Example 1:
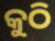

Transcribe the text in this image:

କୁଠି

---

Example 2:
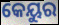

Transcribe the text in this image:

କେୟୁର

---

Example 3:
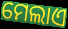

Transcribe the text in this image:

ମେଲାଏ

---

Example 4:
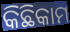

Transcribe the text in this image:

କିଛିକାମ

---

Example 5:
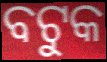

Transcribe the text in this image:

ବଟୁକ